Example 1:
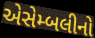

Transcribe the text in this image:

એસેમ્બલીનો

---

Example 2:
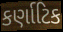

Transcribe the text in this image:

કર્ણાટિક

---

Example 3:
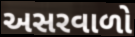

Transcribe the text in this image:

અસરવાળો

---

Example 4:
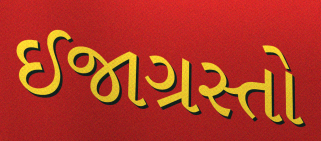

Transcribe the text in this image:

ઈજાગ્રસ્તો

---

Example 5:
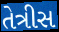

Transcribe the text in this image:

તેત્રીસ